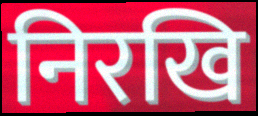
निरखि